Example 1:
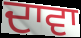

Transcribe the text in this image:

ਦਾਵਾ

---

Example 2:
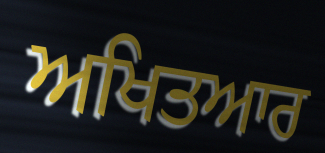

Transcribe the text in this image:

ਅਖਿਤਆਰ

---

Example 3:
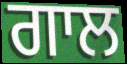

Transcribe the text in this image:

ਗਾਲ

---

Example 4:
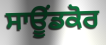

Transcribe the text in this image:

ਸਾਊਂਡਕੋਰ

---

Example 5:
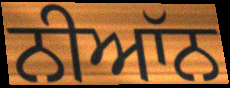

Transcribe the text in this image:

ਨੀਆੱਨ